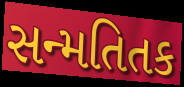
સન્મતિતક